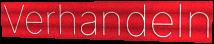
Verhandeln